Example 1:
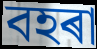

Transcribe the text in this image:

বহৰা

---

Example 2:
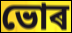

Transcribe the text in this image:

ভোৰ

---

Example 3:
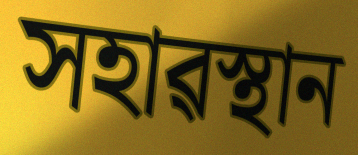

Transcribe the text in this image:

সহাৱস্থান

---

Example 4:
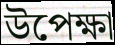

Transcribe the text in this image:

উপেক্ষা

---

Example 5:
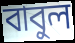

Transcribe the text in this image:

বাবুল